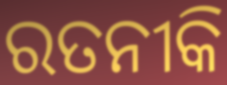
ରତନୀକି